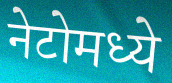
नेटोमध्ये